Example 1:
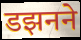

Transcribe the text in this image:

डझनने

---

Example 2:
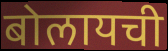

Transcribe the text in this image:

बोलायची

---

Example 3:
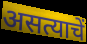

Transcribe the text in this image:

असत्याचें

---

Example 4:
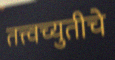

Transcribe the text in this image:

तत्त्वच्युतीचे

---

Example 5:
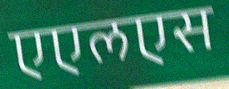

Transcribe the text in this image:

एएलएस